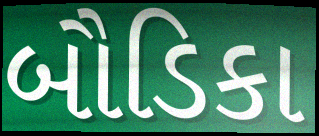
બૌડિકા